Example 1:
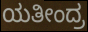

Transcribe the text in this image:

ಯತೀಂದ್ರ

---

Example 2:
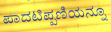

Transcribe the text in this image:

ಪಾದಟಿಪ್ಪಣಿಯನ್ನೂ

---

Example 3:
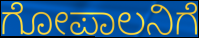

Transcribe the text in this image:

ಗೋಪಾಲನಿಗೆ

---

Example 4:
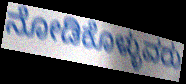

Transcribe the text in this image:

ನೋಡಿಕೊಳ್ಳುವರು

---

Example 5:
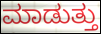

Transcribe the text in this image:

ಮಾಡುತ್ತು